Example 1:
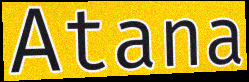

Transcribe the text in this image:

Atana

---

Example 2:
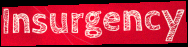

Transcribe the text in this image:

Insurgency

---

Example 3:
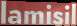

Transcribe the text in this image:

lamisil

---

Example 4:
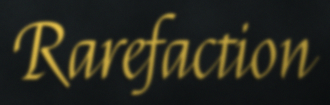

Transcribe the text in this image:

Rarefaction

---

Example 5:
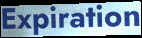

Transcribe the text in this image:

Expiration